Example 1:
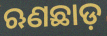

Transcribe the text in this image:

ଋଣଛାଡ଼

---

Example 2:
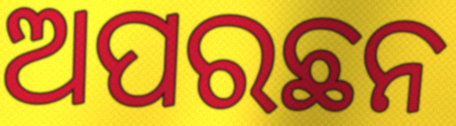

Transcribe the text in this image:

ଅପରଛନ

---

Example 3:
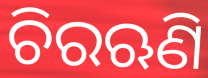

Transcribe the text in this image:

ଚିରଋଣି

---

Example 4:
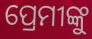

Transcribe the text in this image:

ପ୍ରେମୀଙ୍କୁ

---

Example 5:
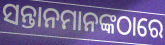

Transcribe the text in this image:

ସନ୍ତାନମାନଙ୍କଠାରେ